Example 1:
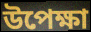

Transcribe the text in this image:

উপেক্ষা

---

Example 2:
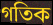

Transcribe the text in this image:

গতিক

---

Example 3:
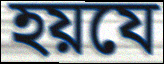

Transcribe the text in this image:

হয়যে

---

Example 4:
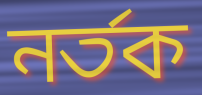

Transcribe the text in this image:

নৰ্তক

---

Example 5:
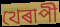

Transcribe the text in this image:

থেৰাপী